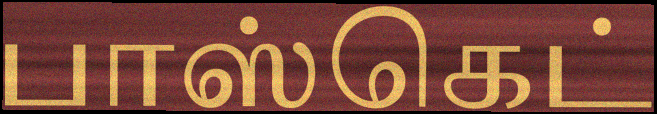
பாஸ்கெட்